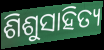
ଶିଶୁସାହିତ୍ୟ